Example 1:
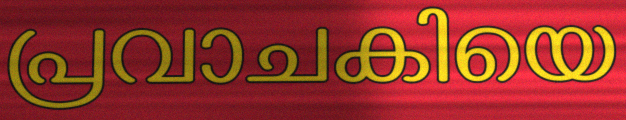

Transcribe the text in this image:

പ്രവാചകിയെ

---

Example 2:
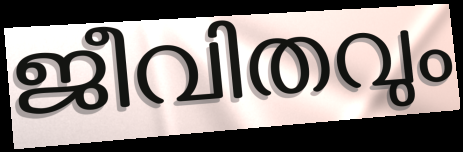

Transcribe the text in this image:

ജീവിതവും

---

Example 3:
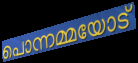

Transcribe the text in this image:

പൊന്നമ്മയോട്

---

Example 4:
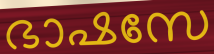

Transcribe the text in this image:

ഭാഷസേ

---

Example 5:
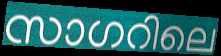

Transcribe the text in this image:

സാഗറിലെ